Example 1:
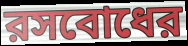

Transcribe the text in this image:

রসবোধের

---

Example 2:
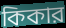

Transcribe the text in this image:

কিকার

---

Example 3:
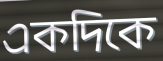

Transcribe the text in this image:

একদিকে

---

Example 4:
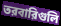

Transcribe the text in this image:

তরবারিগুলি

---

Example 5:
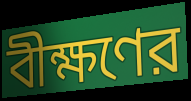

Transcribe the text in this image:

বীক্ষণের